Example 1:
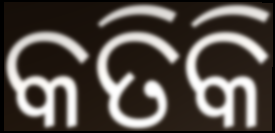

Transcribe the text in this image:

କତିକି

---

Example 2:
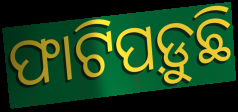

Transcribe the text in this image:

ଫାଟିପଡ଼ୁଛି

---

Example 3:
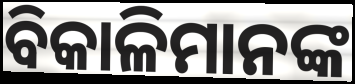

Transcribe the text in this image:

ବିକାଳିମାନଙ୍କ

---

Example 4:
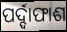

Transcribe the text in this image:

ପର୍ଦ୍ଦାଫାଶ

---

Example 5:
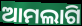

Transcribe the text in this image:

ଆମଲାଗି